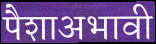
पैशाअभावी